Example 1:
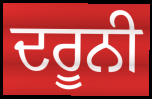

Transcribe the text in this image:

ਦਰੂਨੀ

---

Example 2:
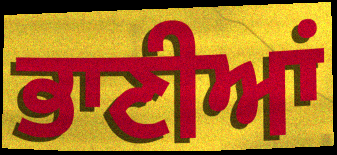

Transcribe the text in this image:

ਭਾਣੀਆਂ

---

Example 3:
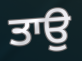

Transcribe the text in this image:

ਤਾਉ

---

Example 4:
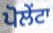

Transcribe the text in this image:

ਪੋਲੇਂਟਾ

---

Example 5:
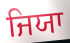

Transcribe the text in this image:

ਜਿਯਾ